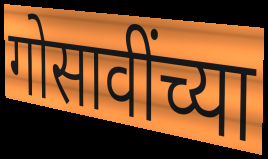
गोसावींच्या